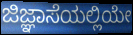
ಜಿಜ್ಞಾಸೆಯಲ್ಲಿಯೇ